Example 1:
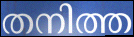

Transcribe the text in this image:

തനിത്ത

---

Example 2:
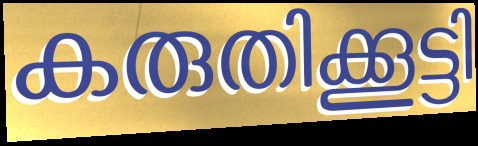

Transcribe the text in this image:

കരുതിക്കൂട്ടി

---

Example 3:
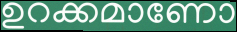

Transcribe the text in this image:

ഉറക്കമാണോ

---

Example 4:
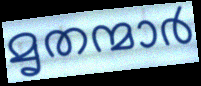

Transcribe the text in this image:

മൃതന്മാർ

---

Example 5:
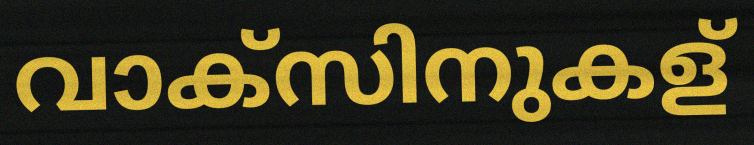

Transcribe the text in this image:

വാക്സിനുകള്